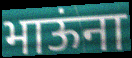
भाऊंना